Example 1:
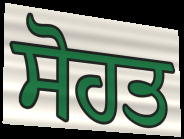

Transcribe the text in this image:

ਸੋਹਤ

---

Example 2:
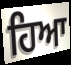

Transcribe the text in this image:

ਹਿਆ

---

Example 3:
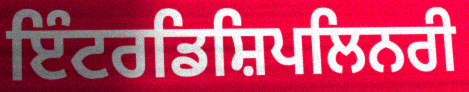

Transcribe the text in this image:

ਇੰਟਰਡਿਸ਼ਿਪਲਿਨਰੀ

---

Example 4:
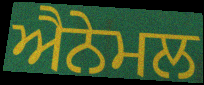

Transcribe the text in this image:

ਐਨੇਮਲ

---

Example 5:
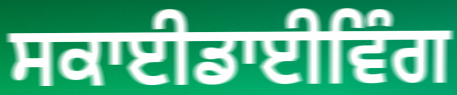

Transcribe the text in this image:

ਸਕਾਈਡਾਈਵਿੰਗ